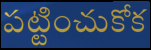
పట్టించుకోక